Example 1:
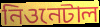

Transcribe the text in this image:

নিওনেটাল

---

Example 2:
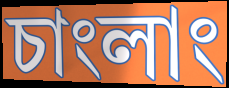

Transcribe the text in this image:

চাংলাং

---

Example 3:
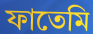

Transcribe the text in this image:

ফাতেমি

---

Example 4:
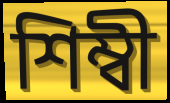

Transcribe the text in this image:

শিম্বী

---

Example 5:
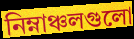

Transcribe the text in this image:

নিম্নাঞ্চলগুলো